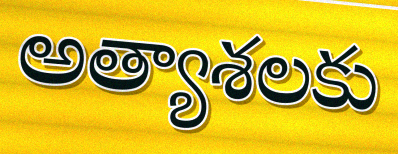
అత్యాశలకు